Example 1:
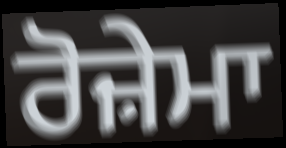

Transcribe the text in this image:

ਰੋਜ਼ੇਮਾ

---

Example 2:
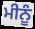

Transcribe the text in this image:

ਮੀਨੂੰ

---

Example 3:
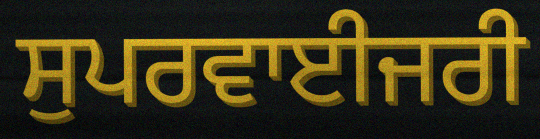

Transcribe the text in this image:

ਸੁਪਰਵਾਈਜਰੀ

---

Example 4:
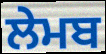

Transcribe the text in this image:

ਲੇਮਬ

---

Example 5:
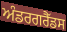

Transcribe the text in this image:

ਅੰਡਰਗਰੈੱਡਸ